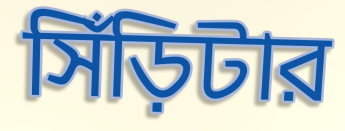
সিঁড়িটার